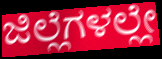
ಜಿಲ್ಲೆಗಳಲ್ಲೇ